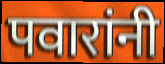
पवारांनी